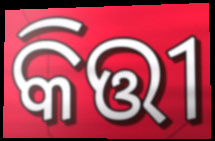
କିତ୍ତୀ